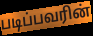
படிப்பவரின்